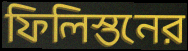
ফিলিস্তনের